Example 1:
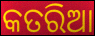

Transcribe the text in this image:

କତରିଆ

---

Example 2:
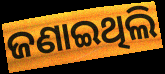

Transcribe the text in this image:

ଜଣାଇଥିଲି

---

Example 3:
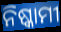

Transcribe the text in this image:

ନିଷ୍କାମୀ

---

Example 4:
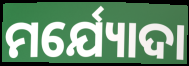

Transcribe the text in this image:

ମର୍ଯ୍ୟୋଦା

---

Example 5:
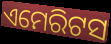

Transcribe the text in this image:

ଏମେରିଟସ